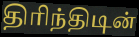
திரிந்திடின்